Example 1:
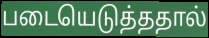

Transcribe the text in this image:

படையெடுத்ததால்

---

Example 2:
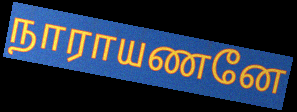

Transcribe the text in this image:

நாராயணனே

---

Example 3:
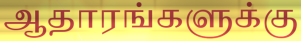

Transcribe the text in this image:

ஆதாரங்களுக்கு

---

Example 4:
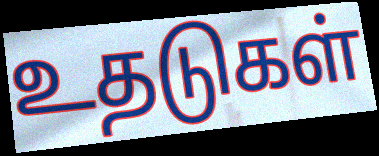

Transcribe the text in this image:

உதடுகள்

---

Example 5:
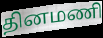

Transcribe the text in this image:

தினமணி